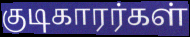
குடிகாரர்கள்